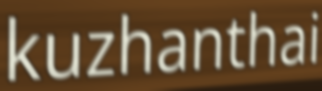
kuzhanthai